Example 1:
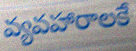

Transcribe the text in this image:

వ్యవహారాలకే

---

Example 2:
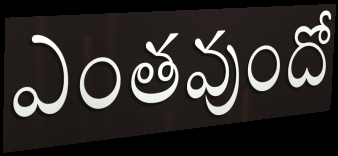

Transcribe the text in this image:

ఎంతవుందో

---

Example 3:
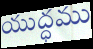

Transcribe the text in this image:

యుద్ధము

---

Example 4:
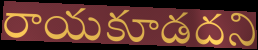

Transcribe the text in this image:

రాయకూడదని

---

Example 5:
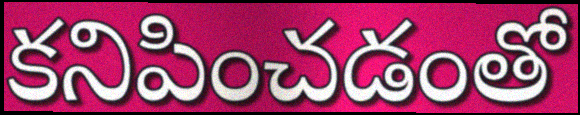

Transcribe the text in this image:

కనిపించడంతో